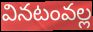
వినటంవల్ల